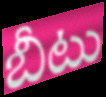
బీటు